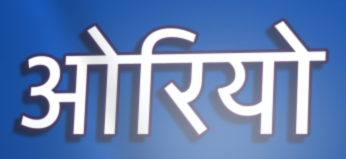
ओरियो